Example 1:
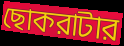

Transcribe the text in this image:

ছোকরাটার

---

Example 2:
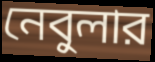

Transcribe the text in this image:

নেবুলার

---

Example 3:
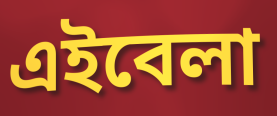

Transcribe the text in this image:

এইবেলা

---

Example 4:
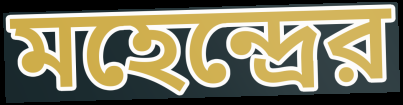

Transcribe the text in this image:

মহেন্দ্রের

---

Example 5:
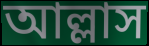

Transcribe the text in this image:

আল্লাস